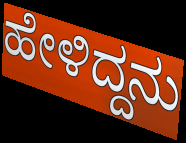
ಹೇಳಿದ್ದನು